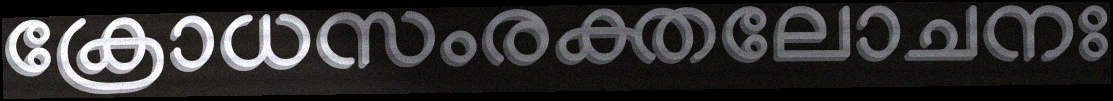
ക്രോധസംരക്തലോചനഃ